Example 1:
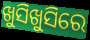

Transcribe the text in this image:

ଖୁସିଖୁସିରେ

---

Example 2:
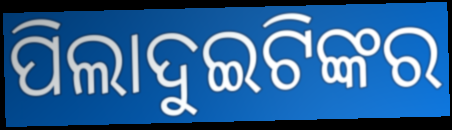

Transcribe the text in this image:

ପିଲାଦୁଇଟିଙ୍କର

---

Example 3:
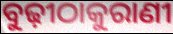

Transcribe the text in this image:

ବୁଢ଼ୀଠାକୁରାଣୀ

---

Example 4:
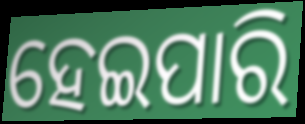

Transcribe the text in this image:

ହେଇପାରି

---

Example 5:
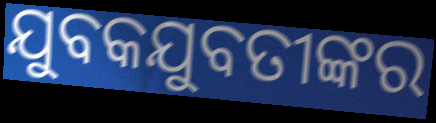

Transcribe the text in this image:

ଯୁବକଯୁବତୀଙ୍କର